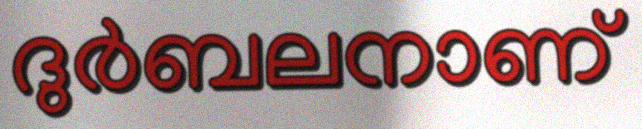
ദുർബലനാണ്